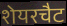
शेयरचैट